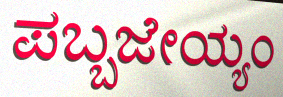
ಪಬ್ಬಜೇಯ್ಯಂ